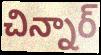
చిన్నార్